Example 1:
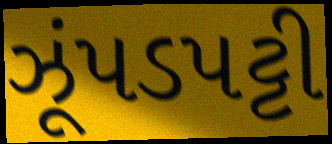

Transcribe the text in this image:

ઝૂંપડપટ્ટી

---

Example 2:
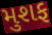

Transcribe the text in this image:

મુશફ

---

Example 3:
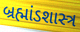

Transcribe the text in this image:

બ્રહ્માંડશાસ્ત્ર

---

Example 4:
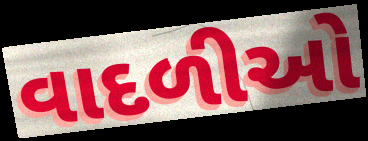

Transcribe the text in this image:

વાદળીઓ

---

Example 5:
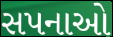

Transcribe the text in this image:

સપનાઓ